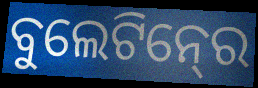
ବୁଲେଟିନ୍‍ରେ